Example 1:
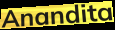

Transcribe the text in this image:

Anandita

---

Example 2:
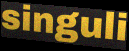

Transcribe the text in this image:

singuli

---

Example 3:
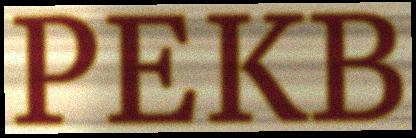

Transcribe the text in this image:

PEKB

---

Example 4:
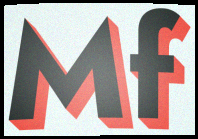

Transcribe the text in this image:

Mf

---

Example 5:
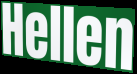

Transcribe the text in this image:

Hellen